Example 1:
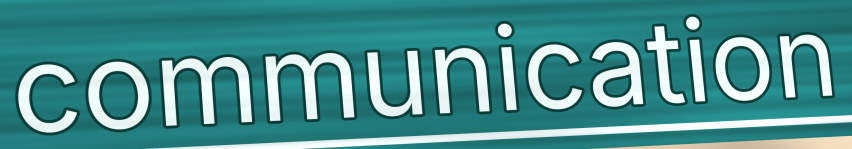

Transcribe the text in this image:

communication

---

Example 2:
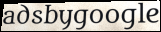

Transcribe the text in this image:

adsbygoogle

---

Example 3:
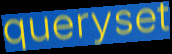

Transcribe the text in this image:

queryset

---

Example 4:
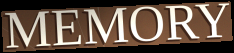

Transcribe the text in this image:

MEMORY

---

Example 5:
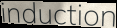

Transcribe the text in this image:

induction